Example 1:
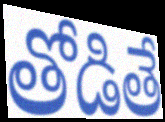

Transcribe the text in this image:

తోడితే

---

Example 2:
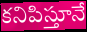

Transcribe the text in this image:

కనిపిస్తూనే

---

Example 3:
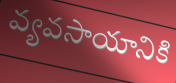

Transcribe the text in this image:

వ్యవసాయానికి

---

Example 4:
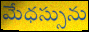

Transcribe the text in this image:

మేధస్సును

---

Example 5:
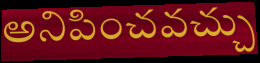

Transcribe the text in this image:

అనిపించవచ్చు